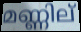
മണ്ണില്